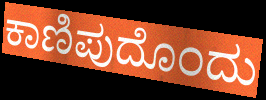
ಕಾಣಿಪುದೊಂದು